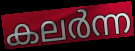
കലർന്ന